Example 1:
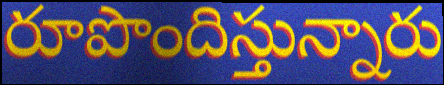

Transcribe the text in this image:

రూపొందిస్తున్నారు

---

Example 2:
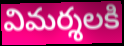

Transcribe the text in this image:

విమర్శలకి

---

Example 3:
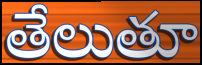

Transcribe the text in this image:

తేలుతూ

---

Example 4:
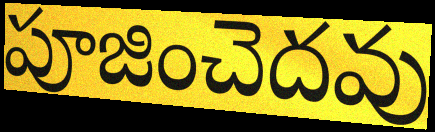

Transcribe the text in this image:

పూజించెదవు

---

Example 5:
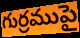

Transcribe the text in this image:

గుర్రముపై